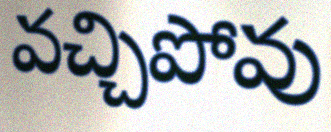
వచ్చిపోవు